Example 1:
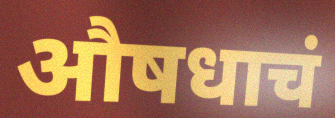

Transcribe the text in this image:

औषधाचं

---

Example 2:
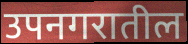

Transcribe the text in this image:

उपनगरातील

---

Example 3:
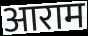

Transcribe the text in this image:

आराम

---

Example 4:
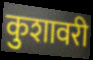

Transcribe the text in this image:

कुशावरी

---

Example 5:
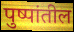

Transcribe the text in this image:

पुष्पांतील